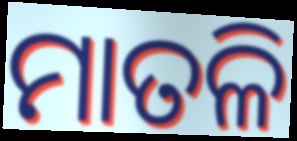
ମାତଳି